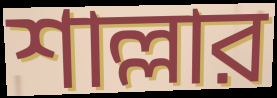
শাল্লার